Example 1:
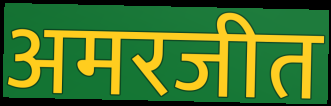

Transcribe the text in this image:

अमरजीत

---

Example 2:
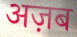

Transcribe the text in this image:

अज़ब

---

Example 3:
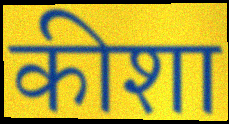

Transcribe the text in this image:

कीशा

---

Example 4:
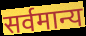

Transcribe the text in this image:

सर्वमान्य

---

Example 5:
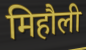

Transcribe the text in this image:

मिहौली